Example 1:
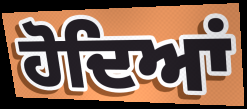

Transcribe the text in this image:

ਹੋਦਿਆਂ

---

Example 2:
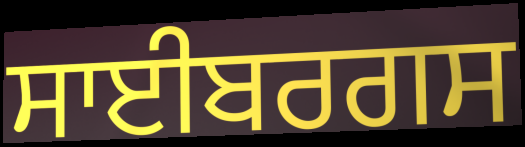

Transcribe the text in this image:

ਸਾਈਬਰਗਸ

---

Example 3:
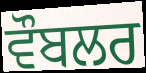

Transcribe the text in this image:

ਵੌਬਲਰ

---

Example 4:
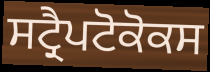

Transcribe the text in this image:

ਸਟ੍ਰੈਪਟੋਕੋਕਸ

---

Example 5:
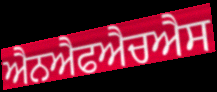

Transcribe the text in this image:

ਐਨਐਫਐਚਐਸ